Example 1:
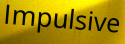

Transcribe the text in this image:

Impulsive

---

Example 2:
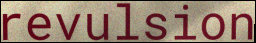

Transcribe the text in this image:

revulsion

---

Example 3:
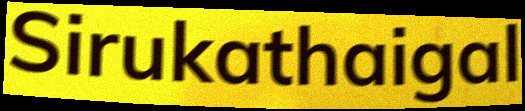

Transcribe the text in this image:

Sirukathaigal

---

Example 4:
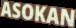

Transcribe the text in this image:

ASOKAN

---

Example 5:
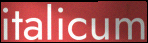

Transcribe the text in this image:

italicum